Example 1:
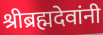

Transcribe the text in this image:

श्रीब्रह्मदेवांनी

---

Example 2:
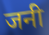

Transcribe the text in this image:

जनी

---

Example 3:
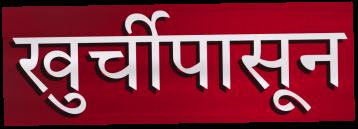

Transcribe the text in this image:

खुर्चीपासून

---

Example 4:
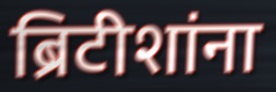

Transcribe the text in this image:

ब्रिटीशांना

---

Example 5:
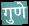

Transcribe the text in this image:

गुणे